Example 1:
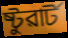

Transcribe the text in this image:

ষ্টুৱাৰ্ট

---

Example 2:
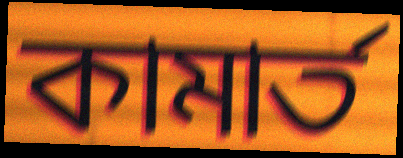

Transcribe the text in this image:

কামাৰ্ত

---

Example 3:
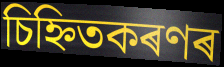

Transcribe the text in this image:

চিহ্নিতকৰণৰ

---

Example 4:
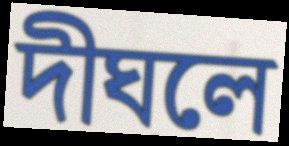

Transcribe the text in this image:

দীঘলে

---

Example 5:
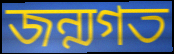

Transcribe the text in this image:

জন্মগত